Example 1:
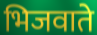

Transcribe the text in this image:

भिजवाते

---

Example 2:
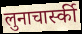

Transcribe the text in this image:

लुनाचार्स्की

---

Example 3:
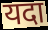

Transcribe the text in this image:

यदा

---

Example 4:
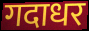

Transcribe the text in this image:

गदाधर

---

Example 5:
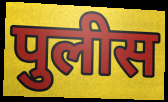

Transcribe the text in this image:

पुलीस